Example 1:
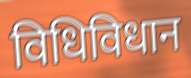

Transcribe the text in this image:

विधिविधान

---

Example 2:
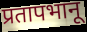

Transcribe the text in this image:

प्रतापभानू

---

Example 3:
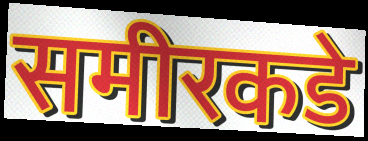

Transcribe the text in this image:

समीरकडे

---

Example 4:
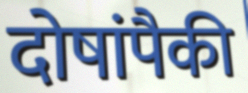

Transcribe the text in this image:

दोषांपैकी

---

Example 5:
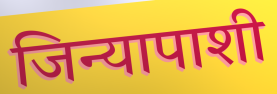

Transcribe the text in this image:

जिन्यापाशी